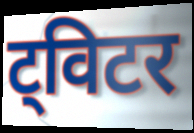
ट्विटर